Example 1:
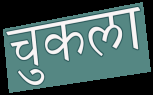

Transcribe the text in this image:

चुकला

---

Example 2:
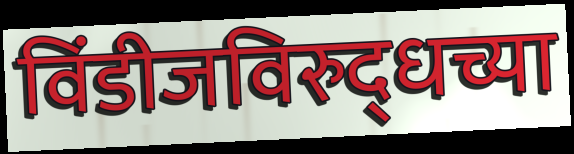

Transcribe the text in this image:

विंडीजविरुद्धच्या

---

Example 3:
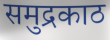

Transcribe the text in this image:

समुद्रकाठ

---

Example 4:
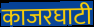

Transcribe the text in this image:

काजरघाटी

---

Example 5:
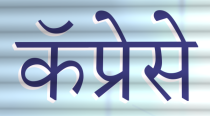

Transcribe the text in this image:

कॅप्रेसे